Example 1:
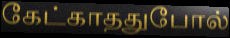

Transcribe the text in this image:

கேட்காததுபோல்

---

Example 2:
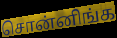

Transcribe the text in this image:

சொன்னிங்க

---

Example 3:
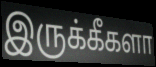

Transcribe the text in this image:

இருக்கீகளா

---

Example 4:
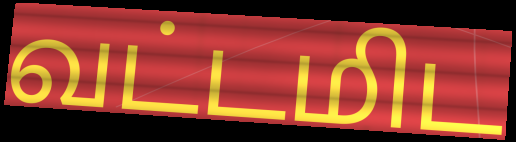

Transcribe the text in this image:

வட்டமிட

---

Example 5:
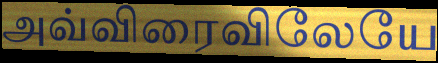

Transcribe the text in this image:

அவ்விரைவிலேயே